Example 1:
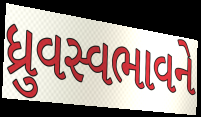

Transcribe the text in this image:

ધ્રુવસ્વભાવને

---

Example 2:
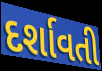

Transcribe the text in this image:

દર્શાવતી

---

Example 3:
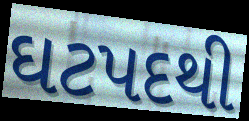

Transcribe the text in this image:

ઘટપદથી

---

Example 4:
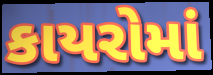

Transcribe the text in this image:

કાયરોમાં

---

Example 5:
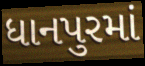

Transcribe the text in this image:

ધાનપુરમાં